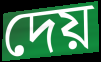
দেয়